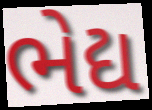
ભેદ્ય